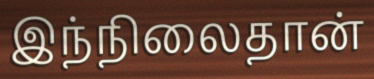
இந்நிலைதான்